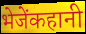
भेजेंकहानी